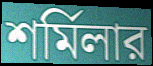
শর্মিলার